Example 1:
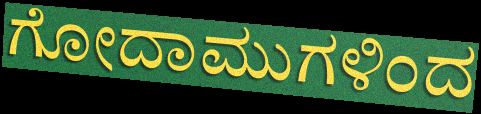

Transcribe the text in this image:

ಗೋದಾಮುಗಳಿಂದ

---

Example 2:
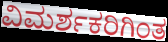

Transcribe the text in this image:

ವಿಮರ್ಶಕರಿಗಿಂತ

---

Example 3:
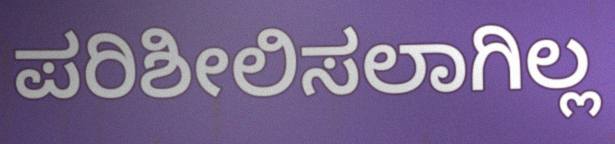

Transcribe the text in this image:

ಪರಿಶೀಲಿಸಲಾಗಿಲ್ಲ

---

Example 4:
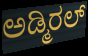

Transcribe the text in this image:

ಅಡ್ಮಿರಲ್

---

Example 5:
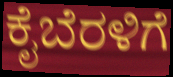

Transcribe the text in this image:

ಕೈಬೆರಳಿಗೆ